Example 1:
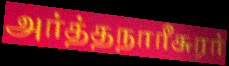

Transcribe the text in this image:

அர்த்தநாரீசுரர்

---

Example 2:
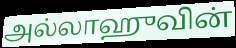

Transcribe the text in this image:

அல்லாஹுவின்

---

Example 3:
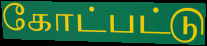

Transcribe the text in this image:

கோட்பட்டு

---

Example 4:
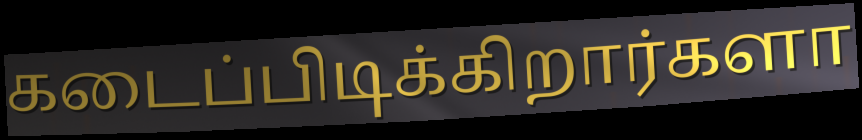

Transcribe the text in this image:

கடைப்பிடிக்கிறார்களா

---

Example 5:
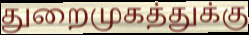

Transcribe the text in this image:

துறைமுகத்துக்கு